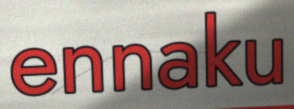
ennaku